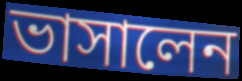
ভাসালেন